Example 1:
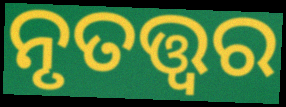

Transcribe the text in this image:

ନୃତତ୍ତ୍ଵର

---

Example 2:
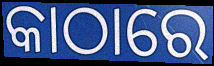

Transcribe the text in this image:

କାଠାରେ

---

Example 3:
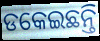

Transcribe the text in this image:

ଡକେଇଛନ୍ତି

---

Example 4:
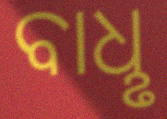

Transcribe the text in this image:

ବାଧୢ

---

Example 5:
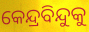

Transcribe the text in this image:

କେନ୍ଦ୍ରବିନ୍ଦୁକୁ